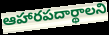
ఆహారపదార్థాలని